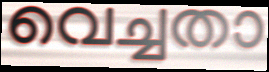
വെച്ചതാ